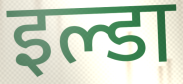
इल्डा